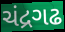
ચંદ્રગઢ